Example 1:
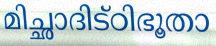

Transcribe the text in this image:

മിച്ഛാദിട്ഠിഭൂതാ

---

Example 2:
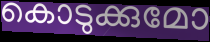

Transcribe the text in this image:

കൊടുക്കുമോ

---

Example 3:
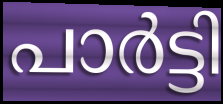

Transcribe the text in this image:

പാർട്ടി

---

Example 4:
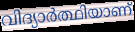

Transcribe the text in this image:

വിദ്യാർത്ഥിയാണ്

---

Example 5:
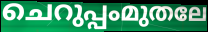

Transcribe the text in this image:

ചെറുപ്പംമുതലേ